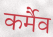
कर्मैव